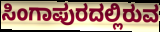
ಸಿಂಗಾಪುರದಲ್ಲಿರುವ